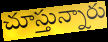
చూస్తున్నారు